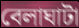
বেলাঘাটা